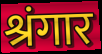
श्रंगार